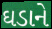
ઘડાને